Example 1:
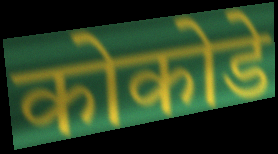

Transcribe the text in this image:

कोकोडे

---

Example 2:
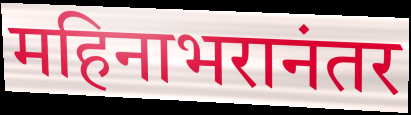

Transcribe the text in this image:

महिनाभरानंतर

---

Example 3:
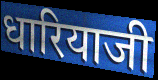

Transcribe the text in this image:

धारियाजी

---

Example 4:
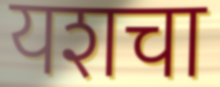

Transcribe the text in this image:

यशचा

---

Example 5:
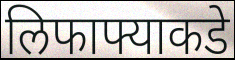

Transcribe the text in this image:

लिफाफ्याकडे